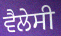
ਵੈਲੇਸੀ